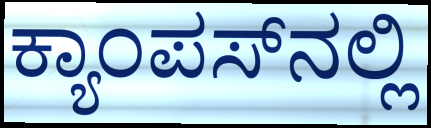
ಕ್ಯಾಂಪಸ್‌ನಲ್ಲಿ